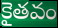
కైతవం